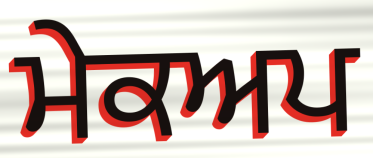
ਮੇਕਅਪ